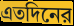
এতদিনের